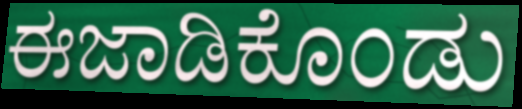
ಈಜಾಡಿಕೊಂಡು